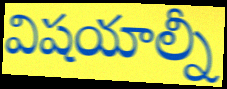
విషయాల్నీ